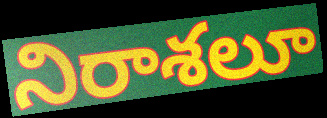
నిరాశలూ